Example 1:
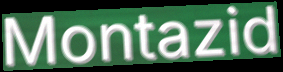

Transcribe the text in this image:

Montazid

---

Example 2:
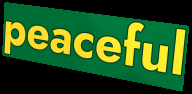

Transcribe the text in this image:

peaceful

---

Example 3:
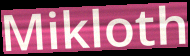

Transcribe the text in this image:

Mikloth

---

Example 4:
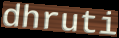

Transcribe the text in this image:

dhruti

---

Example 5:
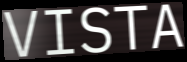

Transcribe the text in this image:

VISTA